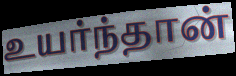
உயர்ந்தான்